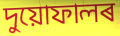
দুয়োফালৰ